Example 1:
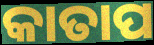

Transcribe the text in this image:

କାତାପ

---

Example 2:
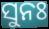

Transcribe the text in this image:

ସୁନଃ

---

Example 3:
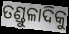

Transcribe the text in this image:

ତଣ୍ଡୁଳାଦିକୁ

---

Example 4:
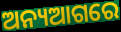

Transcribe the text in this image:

ଅନ୍ୟଆଗରେ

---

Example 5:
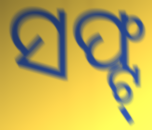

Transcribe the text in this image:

ସଫ୍ଟ୍